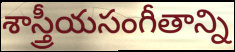
శాస్త్రీయసంగీతాన్ని